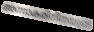
അന്നാകരിനീനയുടെ